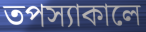
তপস্যাকালে